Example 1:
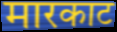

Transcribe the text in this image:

मारकाट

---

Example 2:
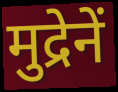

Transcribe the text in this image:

मुद्रेनें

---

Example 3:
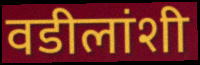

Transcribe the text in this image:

वडीलांशी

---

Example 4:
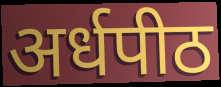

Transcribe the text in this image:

अर्धपीठ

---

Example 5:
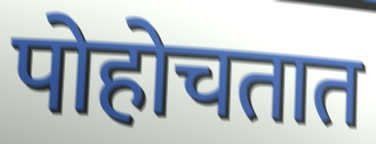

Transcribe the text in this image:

पोहोचतात